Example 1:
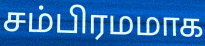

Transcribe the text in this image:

சம்பிரமமாக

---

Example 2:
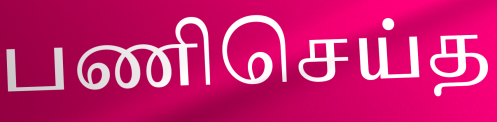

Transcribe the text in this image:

பணிசெய்த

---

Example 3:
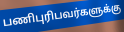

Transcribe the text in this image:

பணிபுரிபவர்களுக்கு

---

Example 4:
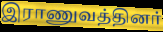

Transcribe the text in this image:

இராணுவத்தினர்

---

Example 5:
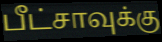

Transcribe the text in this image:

பீட்சாவுக்கு